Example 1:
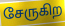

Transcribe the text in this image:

சேருகிற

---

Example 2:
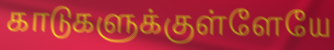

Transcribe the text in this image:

காடுகளுக்குள்ளேயே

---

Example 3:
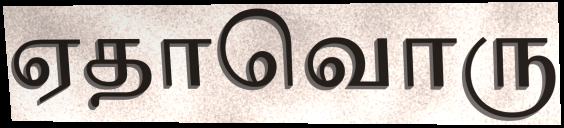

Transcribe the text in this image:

ஏதாவொரு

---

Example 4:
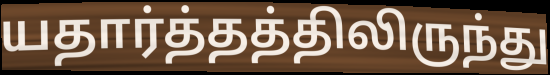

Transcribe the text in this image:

யதார்த்தத்திலிருந்து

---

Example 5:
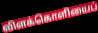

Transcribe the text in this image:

விளக்கொளியைப்